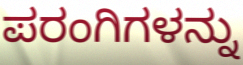
ಪರಂಗಿಗಳನ್ನು